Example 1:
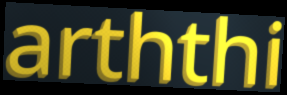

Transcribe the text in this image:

arththi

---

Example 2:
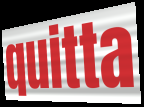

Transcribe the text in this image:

quitta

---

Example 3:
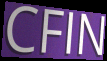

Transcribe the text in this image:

CFIN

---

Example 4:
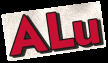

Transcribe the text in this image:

ALu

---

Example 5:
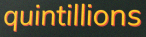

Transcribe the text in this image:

quintillions